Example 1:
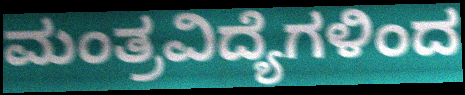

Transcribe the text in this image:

ಮಂತ್ರವಿದ್ಯೆಗಳಿಂದ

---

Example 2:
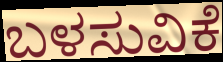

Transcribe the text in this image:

ಬಳಸುವಿಕೆ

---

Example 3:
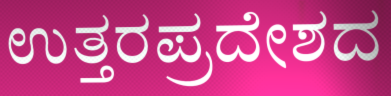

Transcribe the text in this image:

ಉತ್ತರಪ್ರದೇಶದ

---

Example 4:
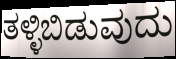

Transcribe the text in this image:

ತಳ್ಳಿಬಿಡುವುದು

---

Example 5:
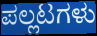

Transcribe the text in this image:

ಪಲ್ಲಟಗಳು